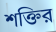
শক্তির